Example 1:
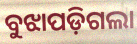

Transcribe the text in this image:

ବୁଝାପଡ଼ିଗଲା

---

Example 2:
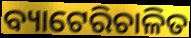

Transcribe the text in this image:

ବ୍ୟାଟେରିଚାଳିତ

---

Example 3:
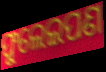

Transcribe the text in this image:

ଫୁଲେଇପଣ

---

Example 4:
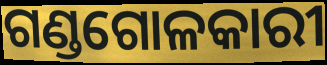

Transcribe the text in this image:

ଗଣ୍ଡଗୋଳକାରୀ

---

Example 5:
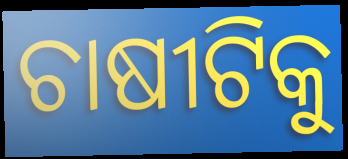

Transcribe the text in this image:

ଚାଷୀଟିକୁ